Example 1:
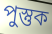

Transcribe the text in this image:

পুস্তুক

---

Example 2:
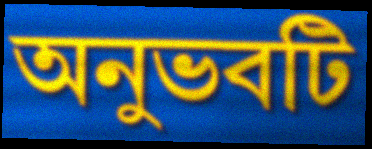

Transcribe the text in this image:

অনুভবটি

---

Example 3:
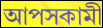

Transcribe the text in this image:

আপসকামী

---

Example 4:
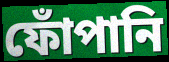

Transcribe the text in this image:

ফোঁপানি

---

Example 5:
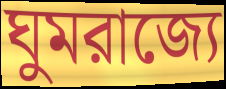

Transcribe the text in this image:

ঘুমরাজ্যে